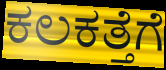
ಕಲಕತ್ತೆಗೆ